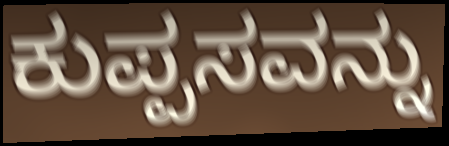
ಕುಪ್ಪಸವನ್ನು